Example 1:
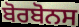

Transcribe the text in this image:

ਬੋਰਬੋਨਸ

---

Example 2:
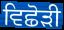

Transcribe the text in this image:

ਵਿਛੋੜੀ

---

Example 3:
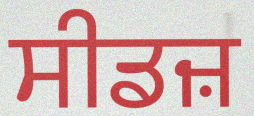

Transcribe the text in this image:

ਸੀਡਜ਼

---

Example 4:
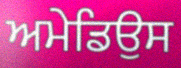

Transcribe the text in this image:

ਅਮੇਡਿਉਸ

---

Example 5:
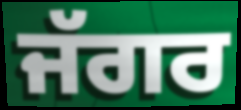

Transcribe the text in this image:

ਜੱਗਰ